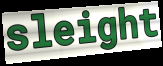
sleight